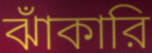
ঝাঁকারি